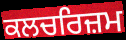
ਕਲਚਰਿਜ਼ਮ